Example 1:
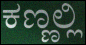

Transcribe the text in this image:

ಕಣ್ಣಲ್ಲಿ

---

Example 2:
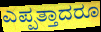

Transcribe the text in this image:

ಎಪ್ಪತ್ತಾದರೂ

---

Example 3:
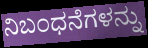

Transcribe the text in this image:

ನಿಬಂಧನೆಗಳನ್ನು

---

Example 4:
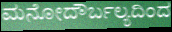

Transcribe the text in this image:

ಮನೋದೌರ್ಬಲ್ಯದಿಂದ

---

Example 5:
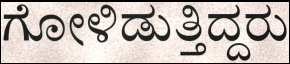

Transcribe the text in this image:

ಗೋಳಿಡುತ್ತಿದ್ದರು